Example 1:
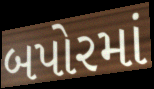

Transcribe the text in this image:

બપોરમાં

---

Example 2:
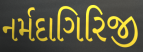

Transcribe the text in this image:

નર્મદાગિરિજી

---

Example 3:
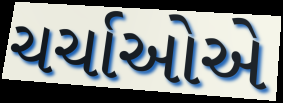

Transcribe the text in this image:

ચર્ચાઓએ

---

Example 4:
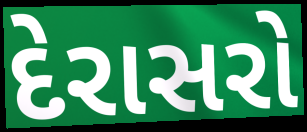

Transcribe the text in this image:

દેરાસરો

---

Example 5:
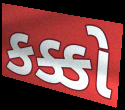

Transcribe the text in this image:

કક્કો